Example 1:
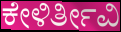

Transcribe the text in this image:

ಕೇಳಿರ್ತೀವಿ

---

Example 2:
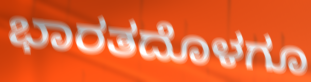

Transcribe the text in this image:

ಭಾರತದೊಳಗೂ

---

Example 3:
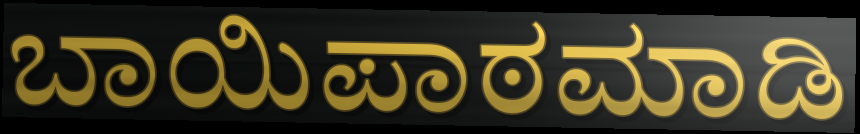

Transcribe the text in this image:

ಬಾಯಿಪಾಠಮಾಡಿ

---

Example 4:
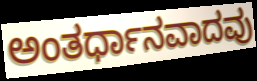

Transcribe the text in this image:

ಅಂತರ್ಧಾನವಾದವು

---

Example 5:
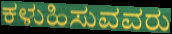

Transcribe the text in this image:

ಕಳುಹಿಸುವವರು